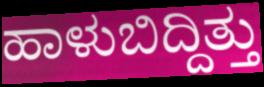
ಹಾಳುಬಿದ್ದಿತ್ತು